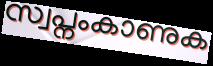
സ്വപ്നംകാണുക